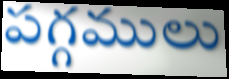
పగ్గములు